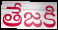
తేజకి